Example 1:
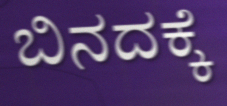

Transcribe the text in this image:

ಬಿನದಕ್ಕೆ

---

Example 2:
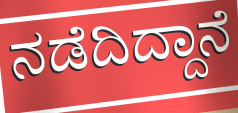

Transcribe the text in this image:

ನಡೆದಿದ್ದಾನೆ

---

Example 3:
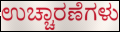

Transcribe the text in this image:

ಉಚ್ಚಾರಣೆಗಳು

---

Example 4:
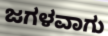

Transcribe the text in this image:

ಜಗಳವಾಗು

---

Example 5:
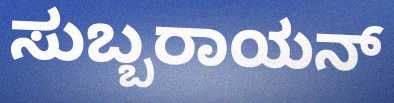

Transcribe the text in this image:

ಸುಬ್ಬರಾಯನ್